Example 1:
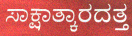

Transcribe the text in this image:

ಸಾಕ್ಷಾತ್ಕಾರದತ್ತ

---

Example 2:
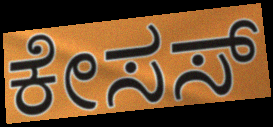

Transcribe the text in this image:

ಕೇಸಸ್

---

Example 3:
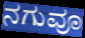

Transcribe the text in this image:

ನಗುವೂ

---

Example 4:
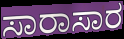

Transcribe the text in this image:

ಸಾರಾಸಾರ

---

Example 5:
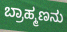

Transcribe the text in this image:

ಬ್ರಾಹ್ಮಣನು